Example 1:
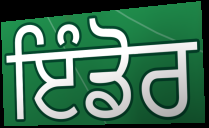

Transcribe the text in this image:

ਇੰਡੋਰ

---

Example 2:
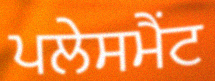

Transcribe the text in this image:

ਪਲੇਸਮੈਂਟ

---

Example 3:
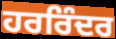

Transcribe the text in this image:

ਹਰਰਿੰਦਰ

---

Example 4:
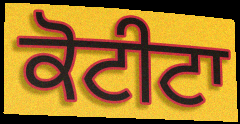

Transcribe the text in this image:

ਕੋਟੀਟਾ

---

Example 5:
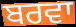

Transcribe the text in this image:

ਬਰਵਾ